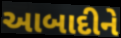
આબાદીને